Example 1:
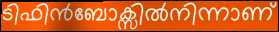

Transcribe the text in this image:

ടിഫിൻബോക്സിൽനിന്നാണ്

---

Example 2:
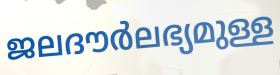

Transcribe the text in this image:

ജലദൗർലഭ്യമുള്ള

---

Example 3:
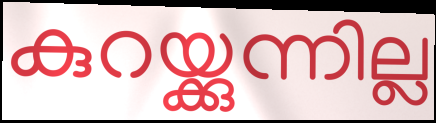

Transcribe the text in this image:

കുറയ്ക്കുന്നില്ല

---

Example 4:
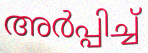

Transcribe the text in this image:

അർപ്പിച്ച്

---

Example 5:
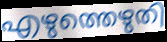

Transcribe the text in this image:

എഴുത്തെഴുതി